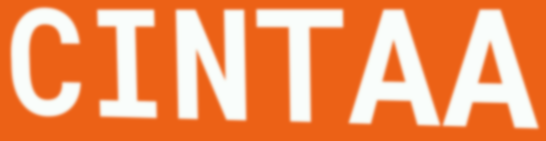
CINTAA